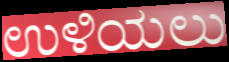
ಉಳಿಯಲು